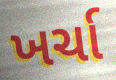
ખર્ચા